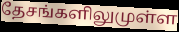
தேசங்களிலுமுள்ள